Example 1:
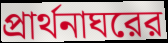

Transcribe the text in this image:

প্রার্থনাঘরের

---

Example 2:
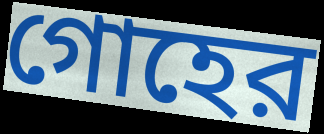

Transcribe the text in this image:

গোহের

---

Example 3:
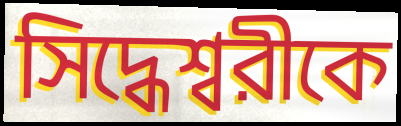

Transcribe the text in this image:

সিদ্ধেশ্বরীকে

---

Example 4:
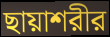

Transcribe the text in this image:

ছায়াশরীর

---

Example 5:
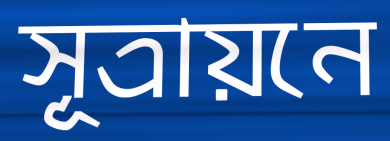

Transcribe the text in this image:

সূত্রায়নে